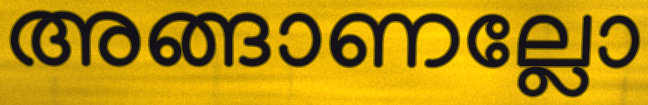
അങ്ങാണല്ലോ